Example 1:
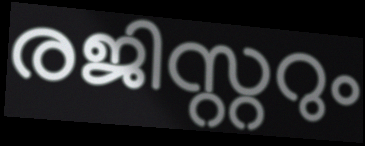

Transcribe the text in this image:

രജിസ്റ്ററും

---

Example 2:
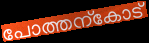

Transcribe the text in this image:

പോത്തന്കോട്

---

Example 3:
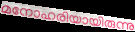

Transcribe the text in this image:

മനോഹരിയായിരുന്നു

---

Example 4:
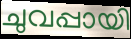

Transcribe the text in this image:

ചുവപ്പായി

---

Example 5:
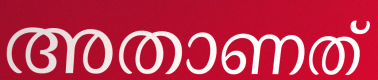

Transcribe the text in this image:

അതാണത്